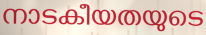
നാടകീയതയുടെ